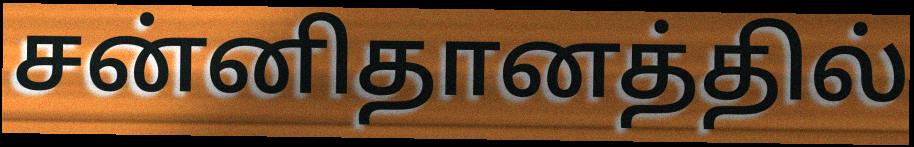
சன்னிதானத்தில்